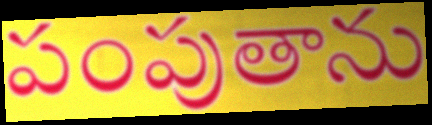
పంపుతాను